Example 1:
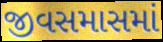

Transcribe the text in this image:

જીવસમાસમાં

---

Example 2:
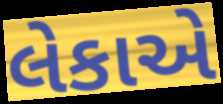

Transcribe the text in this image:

લેકાએ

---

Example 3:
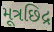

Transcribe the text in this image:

મૂત્રછિદ્ર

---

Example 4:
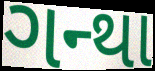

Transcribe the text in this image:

ગન્થા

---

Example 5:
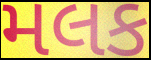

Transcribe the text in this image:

મલક